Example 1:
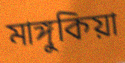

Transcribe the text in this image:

মাঙ্গুকিয়া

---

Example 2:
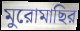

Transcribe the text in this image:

মুরোমাছির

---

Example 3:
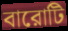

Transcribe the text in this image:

বারোটি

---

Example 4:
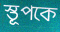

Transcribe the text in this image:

স্তূপকে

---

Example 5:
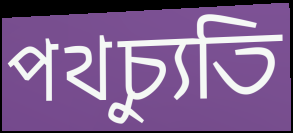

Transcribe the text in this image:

পথচ্যুতি